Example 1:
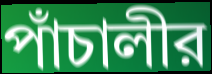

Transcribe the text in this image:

পাঁচালীর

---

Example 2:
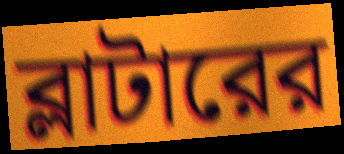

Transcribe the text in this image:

ব্লাটারের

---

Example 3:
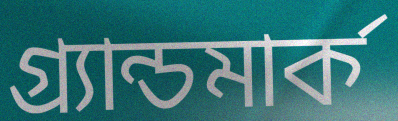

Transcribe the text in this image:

গ্র্যান্ডমার্ক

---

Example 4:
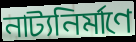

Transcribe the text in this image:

নাট্যনির্মাণে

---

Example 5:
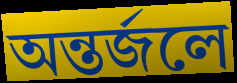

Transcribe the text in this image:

অন্তর্জলে